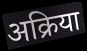
अक्रिया